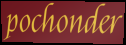
pochonder